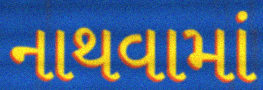
નાથવામાં